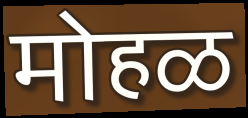
मोहळ